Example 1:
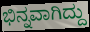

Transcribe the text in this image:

ಭಿನ್ನವಾಗಿದ್ದು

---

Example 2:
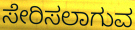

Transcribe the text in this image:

ಸೇರಿಸಲಾಗುವ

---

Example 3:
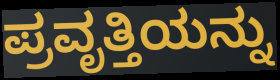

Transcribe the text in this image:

ಪ್ರವೃತ್ತಿಯನ್ನು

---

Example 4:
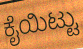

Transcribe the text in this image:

ಕೈಯಿಟ್ಟು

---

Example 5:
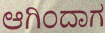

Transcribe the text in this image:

ಆಗಿಂದಾಗ